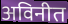
अविनीत